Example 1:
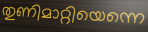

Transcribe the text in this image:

തുണിമാറ്റിയെന്നെ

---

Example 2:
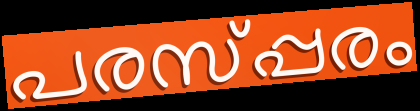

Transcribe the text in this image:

പരസ്പ്പരം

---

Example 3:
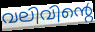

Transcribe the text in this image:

വലിവിന്റെ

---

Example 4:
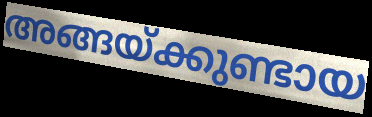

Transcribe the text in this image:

അങ്ങയ്ക്കുണ്ടായ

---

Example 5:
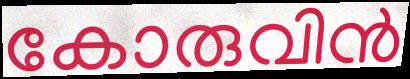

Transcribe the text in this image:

കോരുവിൻ